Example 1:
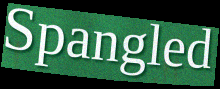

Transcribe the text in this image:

Spangled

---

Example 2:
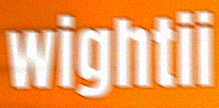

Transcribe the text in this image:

wightii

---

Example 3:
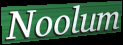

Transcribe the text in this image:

Noolum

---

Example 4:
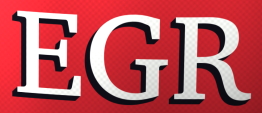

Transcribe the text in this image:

EGR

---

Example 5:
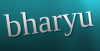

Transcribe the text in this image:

bharyu